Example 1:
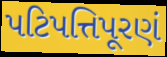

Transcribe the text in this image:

પટિપત્તિપૂરણં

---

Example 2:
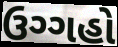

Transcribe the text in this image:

ઉગ્ગહો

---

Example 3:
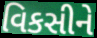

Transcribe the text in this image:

વિકસીને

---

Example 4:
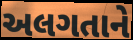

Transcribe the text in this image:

અલગતાને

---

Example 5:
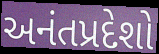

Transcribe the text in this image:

અનંતપ્રદેશો